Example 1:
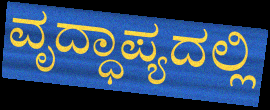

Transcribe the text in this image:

ವೃದ್ಧಾಪ್ಯದಲ್ಲಿ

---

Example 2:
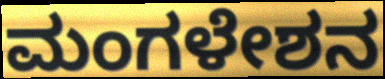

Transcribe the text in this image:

ಮಂಗಳೇಶನ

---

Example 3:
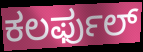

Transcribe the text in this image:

ಕಲರ್ಫುಲ್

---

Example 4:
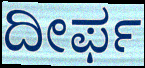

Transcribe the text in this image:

ದೀರ್ಫ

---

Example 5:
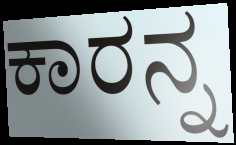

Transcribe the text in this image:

ಕಾರನ್ನ